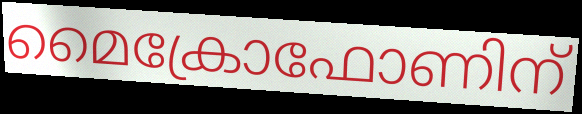
മൈക്രോഫോണിന്